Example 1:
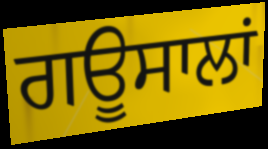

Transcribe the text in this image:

ਗਊਸਾਲਾਂ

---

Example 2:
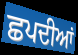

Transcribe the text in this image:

ਛਪਦੀਆਂ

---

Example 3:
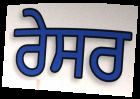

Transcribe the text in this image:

ਰੇਸਰ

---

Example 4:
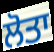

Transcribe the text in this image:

ਲੋਤਾ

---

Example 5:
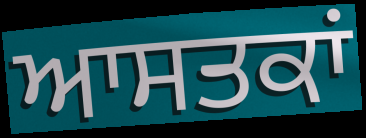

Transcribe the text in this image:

ਆਸਤਕਾਂ